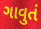
ગાવુતં